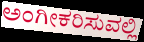
ಅಂಗೀಕರಿಸುವಲ್ಲಿ